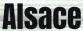
Alsace